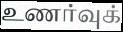
உணர்வுக்